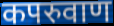
कपरुवाण